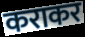
कराकर